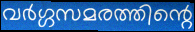
വർഗ്ഗസമരത്തിന്റെ